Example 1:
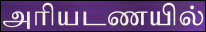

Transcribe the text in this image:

அரியடணயில்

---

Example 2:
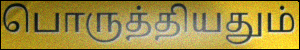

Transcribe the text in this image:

பொருத்தியதும்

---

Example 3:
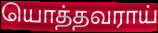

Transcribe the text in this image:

யொத்தவராய்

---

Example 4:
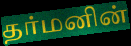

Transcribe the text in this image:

தர்மனின்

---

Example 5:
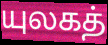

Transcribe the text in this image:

யுலகத்